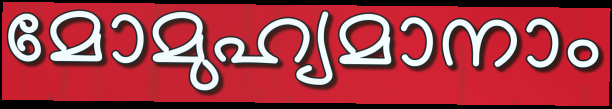
മോമുഹ്യമാനാം